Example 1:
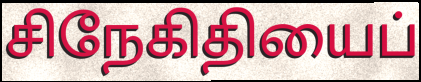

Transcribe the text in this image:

சிநேகிதியைப்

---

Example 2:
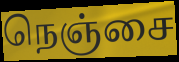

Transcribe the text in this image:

நெஞ்சை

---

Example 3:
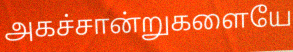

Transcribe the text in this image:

அகச்சான்றுகளையே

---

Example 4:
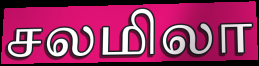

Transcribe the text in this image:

சலமிலா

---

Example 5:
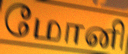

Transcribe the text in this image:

மோனி